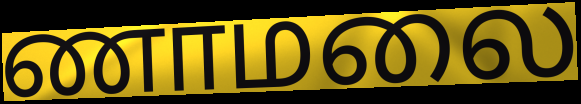
ணாமலை